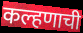
कल्हणाची